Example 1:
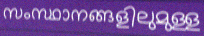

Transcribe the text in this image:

സംസ്ഥാനങ്ങളിലുമുള്ള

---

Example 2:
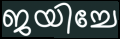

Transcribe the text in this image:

ജയിച്ചേ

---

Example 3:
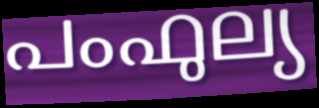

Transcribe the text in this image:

പംഫുല്യ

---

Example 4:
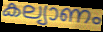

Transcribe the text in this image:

കല്യാണം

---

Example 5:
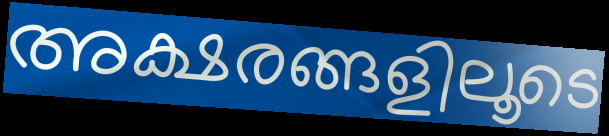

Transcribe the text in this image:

അക്ഷരങ്ങളിലൂടെ